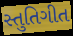
સ્તુતિગીત